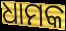
ଧାମକ